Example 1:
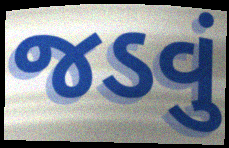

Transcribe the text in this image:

જડવું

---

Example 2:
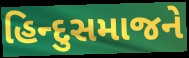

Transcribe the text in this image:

હિન્દુસમાજને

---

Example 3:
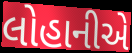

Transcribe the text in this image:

લોહાનીએ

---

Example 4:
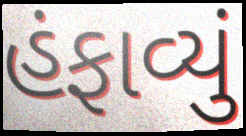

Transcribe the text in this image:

હંફાવ્યું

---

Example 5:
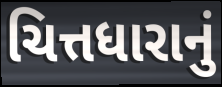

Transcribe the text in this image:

ચિત્તધારાનું